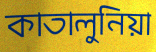
কাতালুনিয়া